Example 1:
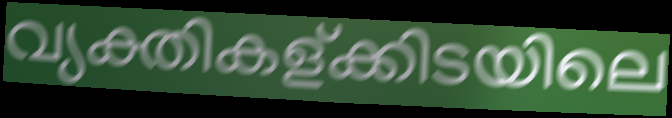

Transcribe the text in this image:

വ്യക്തികള്ക്കിടയിലെ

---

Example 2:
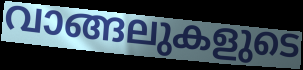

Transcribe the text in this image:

വാങ്ങലുകളുടെ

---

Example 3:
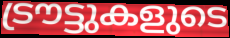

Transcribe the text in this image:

ട്രൗട്ടുകളുടെ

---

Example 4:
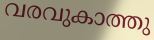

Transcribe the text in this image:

വരവുകാത്തു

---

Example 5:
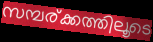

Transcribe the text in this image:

സമ്പര്ക്കത്തിലൂടെ